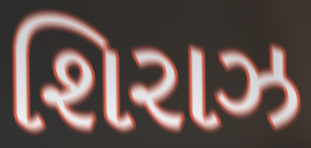
શિરાઝ